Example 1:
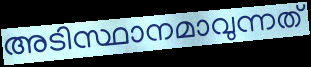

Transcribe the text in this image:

അടിസ്ഥാനമാവുന്നത്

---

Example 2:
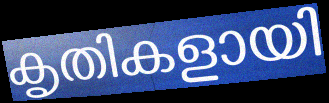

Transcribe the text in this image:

കൃതികളായി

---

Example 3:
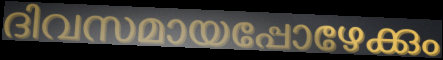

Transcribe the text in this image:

ദിവസമായപ്പോഴേക്കും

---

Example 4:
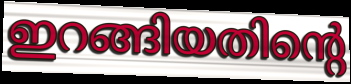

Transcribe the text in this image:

ഇറങ്ങിയതിന്റെ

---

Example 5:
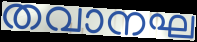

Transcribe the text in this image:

തവാനഘ